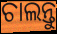
ଚାଲନ୍ତୁ